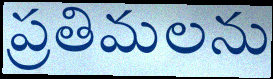
ప్రతిమలను